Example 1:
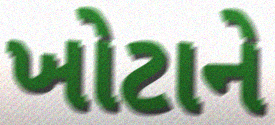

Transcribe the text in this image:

ખોટાને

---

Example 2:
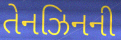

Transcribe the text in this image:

તેનઝિનની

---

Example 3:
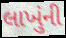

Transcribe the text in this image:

લાખુંની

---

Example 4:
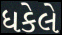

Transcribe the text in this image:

ધકેલે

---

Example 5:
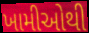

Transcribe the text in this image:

ખામીઓથી